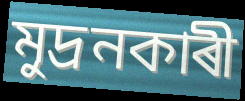
মুদ্ৰনকাৰী